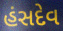
હંસદેવ